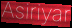
Asiriyar